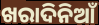
ଖରାଦିନିଆଁ